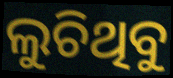
ଲୁଚିଥିବୁ